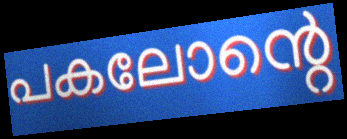
പകലോന്റെ